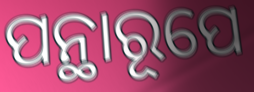
ପନ୍ଥାରୂପେ